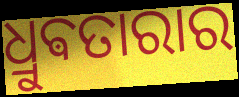
ଧ୍ରୁଵତାରାର